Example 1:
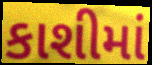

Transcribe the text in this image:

કાશીમાં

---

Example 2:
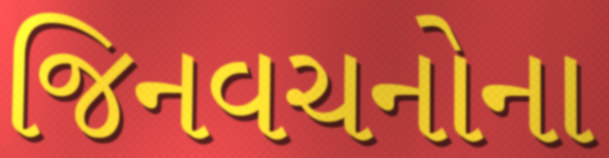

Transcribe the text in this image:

જિનવચનોના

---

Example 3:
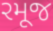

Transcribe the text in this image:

રમૂજ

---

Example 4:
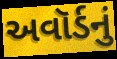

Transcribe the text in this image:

અવૉર્ડનું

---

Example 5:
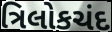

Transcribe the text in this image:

ત્રિલોકચંદ